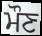
ਮੌਣ